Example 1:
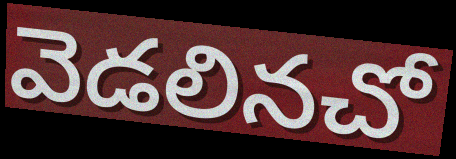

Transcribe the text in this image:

వెడలినచో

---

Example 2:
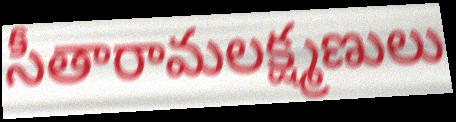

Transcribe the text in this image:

సీతారామలక్ష్మణులు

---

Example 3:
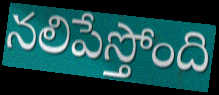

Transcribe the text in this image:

నలిపేస్తోంది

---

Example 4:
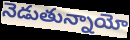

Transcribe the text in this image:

నెడుతున్నాయో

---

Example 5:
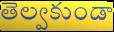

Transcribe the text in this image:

తెల్వకుండా